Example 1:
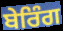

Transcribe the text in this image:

ਬੇਰਿੰਗ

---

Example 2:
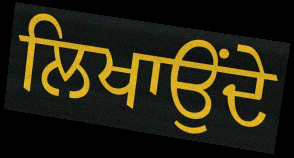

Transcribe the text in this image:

ਲਿਖਾਉਂਦੇ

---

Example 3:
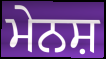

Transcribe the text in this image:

ਮੇਨਸ਼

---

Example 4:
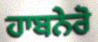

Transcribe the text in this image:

ਹਾਬਨੇਰੋ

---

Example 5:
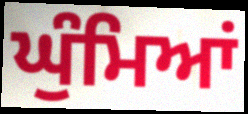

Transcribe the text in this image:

ਘੁੰਮਿਆਂ